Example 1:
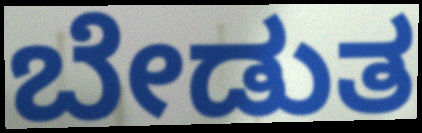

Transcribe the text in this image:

ಬೇಡುತ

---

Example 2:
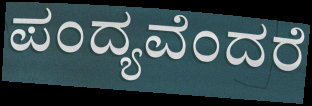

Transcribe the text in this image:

ಪಂದ್ಯವೆಂದರೆ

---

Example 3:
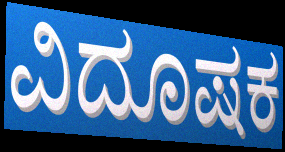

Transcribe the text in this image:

ವಿದೂಷಕ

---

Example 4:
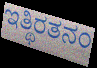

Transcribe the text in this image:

ಇತ್ಥಿರತನಂ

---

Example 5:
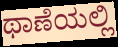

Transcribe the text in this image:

ಥಾಣೆಯಲ್ಲಿ